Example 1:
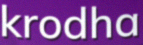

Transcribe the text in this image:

krodha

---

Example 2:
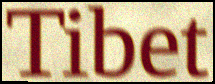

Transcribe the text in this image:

Tibet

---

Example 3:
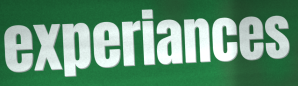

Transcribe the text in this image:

experiances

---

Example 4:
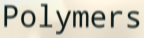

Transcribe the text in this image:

Polymers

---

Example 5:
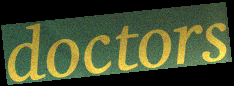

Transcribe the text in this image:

doctors